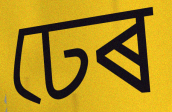
ঢেৰ